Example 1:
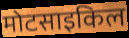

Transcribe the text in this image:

मोटसाइकिल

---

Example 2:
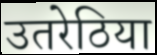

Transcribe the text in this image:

उतरेठिया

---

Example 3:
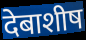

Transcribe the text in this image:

देबाशीष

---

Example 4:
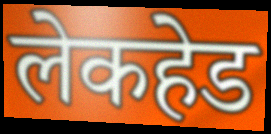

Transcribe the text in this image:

लेकहेड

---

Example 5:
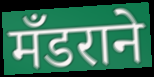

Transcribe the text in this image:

मँडराने